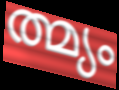
ത്മ്യം